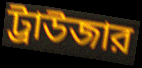
ট্রাউজার